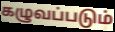
கழுவப்படும்